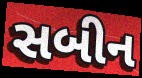
સબીન